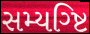
સમ્યગ્ષ્ટિ